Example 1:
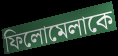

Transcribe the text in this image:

ফিলোমেলাকে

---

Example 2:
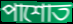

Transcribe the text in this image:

পাশোত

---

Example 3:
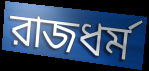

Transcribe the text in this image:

রাজধর্ম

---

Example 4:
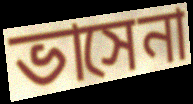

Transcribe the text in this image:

ভাসেনা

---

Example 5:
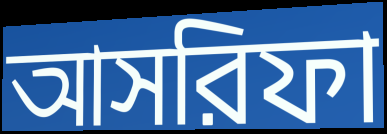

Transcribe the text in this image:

আসরিফা